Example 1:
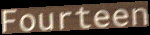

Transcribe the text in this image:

Fourteen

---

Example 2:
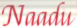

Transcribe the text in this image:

Naadu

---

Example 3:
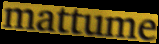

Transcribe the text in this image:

mattume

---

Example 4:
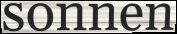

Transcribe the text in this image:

sonnen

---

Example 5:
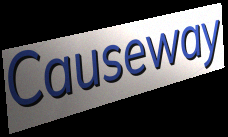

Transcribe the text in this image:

Causeway